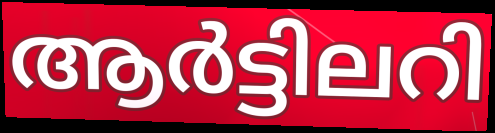
ആർട്ടിലറി